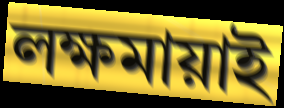
লক্ষমায়াই